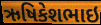
ઋષિકેશભાઇ